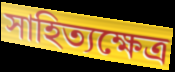
সাহিত্যক্ষেত্র